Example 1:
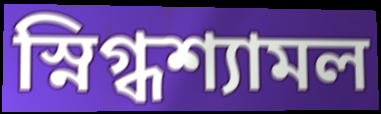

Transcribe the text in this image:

স্নিগ্ধশ্যামল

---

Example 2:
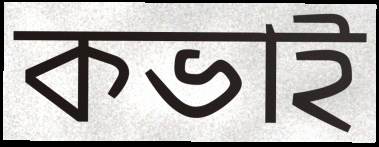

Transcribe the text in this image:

কভাই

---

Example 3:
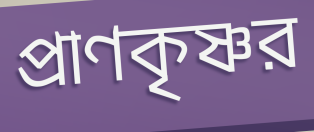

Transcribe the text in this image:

প্রাণকৃষ্ণর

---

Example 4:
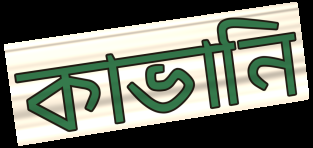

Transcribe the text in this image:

কাভানি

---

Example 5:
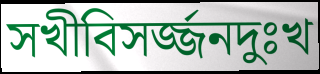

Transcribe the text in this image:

সখীবিসর্জ্জনদুঃখ